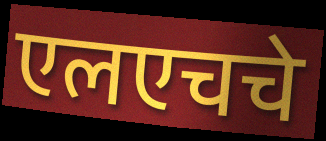
एलएचचे